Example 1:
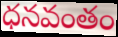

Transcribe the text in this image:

ధనవంతం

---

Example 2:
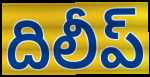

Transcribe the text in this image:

దిలీప్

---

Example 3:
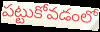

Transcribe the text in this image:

పట్టుకోవడంలో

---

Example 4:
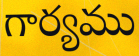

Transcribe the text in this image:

గార్యము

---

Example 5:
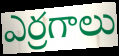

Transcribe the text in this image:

ఎర్రగాలు